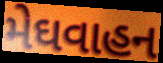
મેઘવાહન